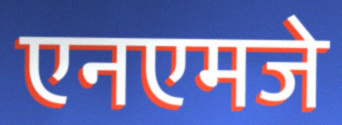
एनएमजे